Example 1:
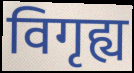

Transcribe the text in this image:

विगृह्य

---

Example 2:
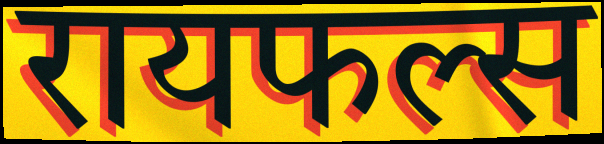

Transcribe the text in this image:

रायफल्स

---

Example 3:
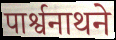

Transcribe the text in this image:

पार्श्वनाथने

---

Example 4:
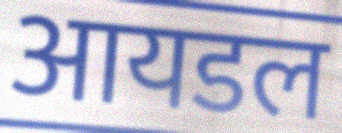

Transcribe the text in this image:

आयडल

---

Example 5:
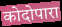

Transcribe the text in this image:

कोदोपारा